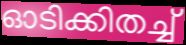
ഓടിക്കിതച്ച്